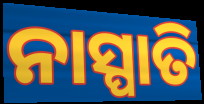
ନାସ୍ପାତି